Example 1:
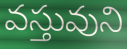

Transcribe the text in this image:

వస్తువుని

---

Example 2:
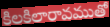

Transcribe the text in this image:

కిలకిలారావముతో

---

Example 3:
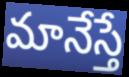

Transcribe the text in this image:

మానేస్తే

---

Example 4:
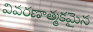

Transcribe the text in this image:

వివరణాత్మకమైన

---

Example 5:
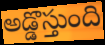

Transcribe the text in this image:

అడ్డొస్తుంది